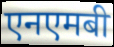
एनएमबी